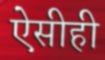
ऐसीही